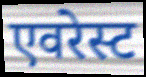
एवरेस्ट